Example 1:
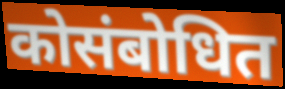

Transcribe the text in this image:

कोसंबोधित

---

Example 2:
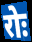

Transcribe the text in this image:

रोः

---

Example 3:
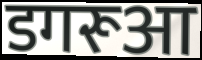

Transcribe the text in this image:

डगरूआ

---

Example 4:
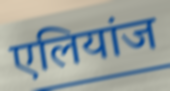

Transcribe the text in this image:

एलियांज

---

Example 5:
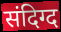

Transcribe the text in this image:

संदिग्द